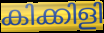
കിക്കിളി